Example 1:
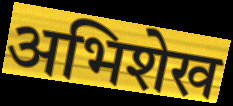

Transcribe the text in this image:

अभिशेख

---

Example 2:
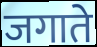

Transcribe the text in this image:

जगाते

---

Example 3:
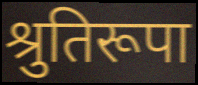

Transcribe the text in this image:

श्रुतिरूपा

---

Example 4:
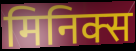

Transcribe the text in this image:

मिनिक्स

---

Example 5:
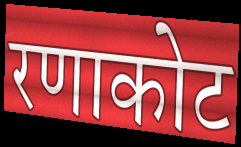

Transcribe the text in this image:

रणाकोट